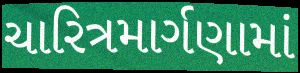
ચારિત્રમાર્ગણામાં